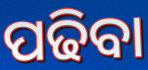
ପଢିବା